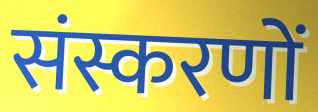
संस्करणों